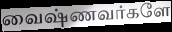
வைஷ்ணவர்களே